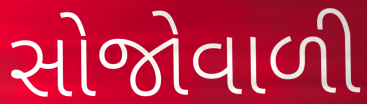
સોજોવાળી